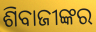
ଶିବାଜୀଙ୍କର